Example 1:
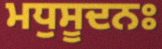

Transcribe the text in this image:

ਮਧੁਸੂਦਨਃ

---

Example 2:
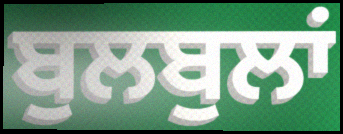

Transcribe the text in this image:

ਬੁਲਬੁਲਾਂ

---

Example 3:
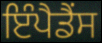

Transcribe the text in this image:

ਇੰਪੈਡੈਂਸ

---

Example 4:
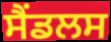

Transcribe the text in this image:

ਸੈਂਡਲਸ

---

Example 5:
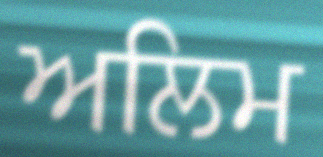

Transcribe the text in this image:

ਅਲਿਮ